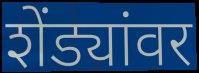
शेंड्यांवर